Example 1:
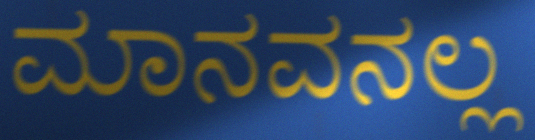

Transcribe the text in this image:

ಮಾನವನಲ್ಲ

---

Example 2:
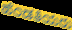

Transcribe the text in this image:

ಹೆಂಡತಿಯರು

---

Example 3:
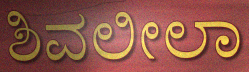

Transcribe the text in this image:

ಶಿವಲೀಲಾ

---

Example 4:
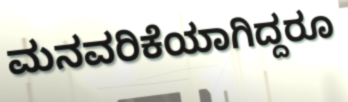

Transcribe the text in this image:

ಮನವರಿಕೆಯಾಗಿದ್ದರೂ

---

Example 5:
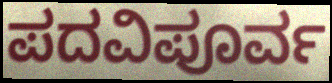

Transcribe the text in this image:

ಪದವಿಪೂರ್ವ